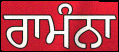
ਰਾਮੰਨਾ